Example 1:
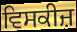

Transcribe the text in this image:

ਵਿਸਕੀਜ਼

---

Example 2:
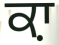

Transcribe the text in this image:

ਕ਼ਾ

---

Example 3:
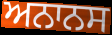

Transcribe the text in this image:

ਅਨਾਨਸ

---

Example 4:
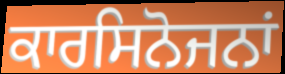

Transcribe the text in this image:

ਕਾਰਸਿਨੋਜਨਾਂ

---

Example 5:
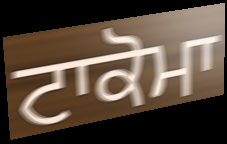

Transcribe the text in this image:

ਟਾਕੋਮਾ